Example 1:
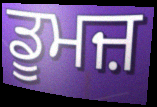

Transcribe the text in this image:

ਡੂਮਜ਼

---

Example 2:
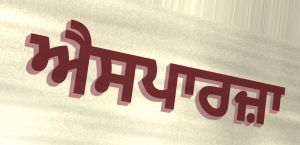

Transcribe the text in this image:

ਐਸਪਾਰਜ਼ਾ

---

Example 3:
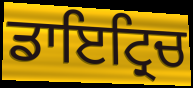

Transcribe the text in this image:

ਡਾਇਟ੍ਰਿਚ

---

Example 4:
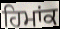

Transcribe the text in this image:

ਹਿਮਾਂਕ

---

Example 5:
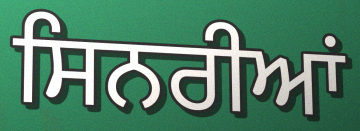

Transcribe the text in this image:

ਸਿਨਰੀਆਂ